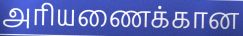
அரியணைக்கான